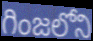
గింజలోని